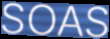
SOAS